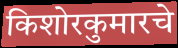
किशोरकुमारचे